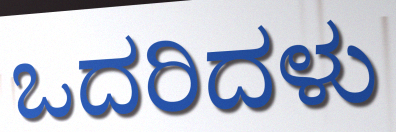
ಒದರಿದಳು